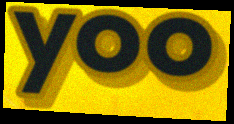
yoo